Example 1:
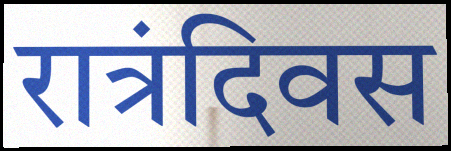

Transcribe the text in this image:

रात्रंदिवस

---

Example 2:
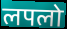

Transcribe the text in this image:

लपलो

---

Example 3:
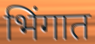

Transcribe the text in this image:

भिंगात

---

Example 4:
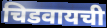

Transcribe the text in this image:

चिडवायची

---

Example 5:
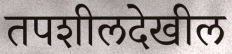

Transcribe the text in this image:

तपशीलदेखील